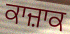
ਕਾਜ਼ਾਕ